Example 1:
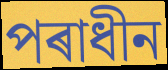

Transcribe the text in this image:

পৰাধীন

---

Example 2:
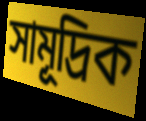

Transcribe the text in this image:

সামূদ্ৰিক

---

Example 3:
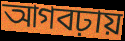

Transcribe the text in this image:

আগবঢ়ায়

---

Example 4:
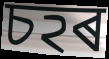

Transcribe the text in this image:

চহৰ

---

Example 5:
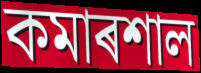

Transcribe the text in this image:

কমাৰশাল